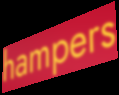
hampers